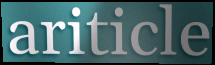
ariticle